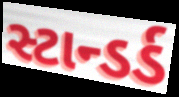
સ્ટાન્ડર્ડ